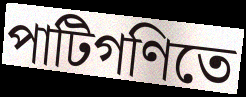
পাটিগণিতে